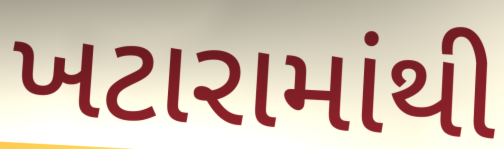
ખટારામાંથી